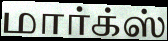
மார்க்ஸ்